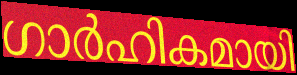
ഗാർഹികമായി